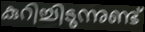
കുറിച്ചിടുന്നുണ്ട്